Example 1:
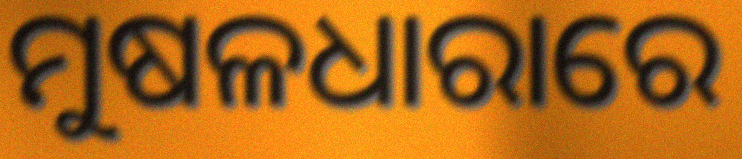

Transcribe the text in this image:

ମୁଷଳଧାରାରେ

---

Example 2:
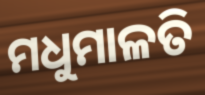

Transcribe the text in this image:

ମଧୁମାଳତି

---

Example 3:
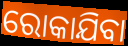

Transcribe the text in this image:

ରୋକାଯିବା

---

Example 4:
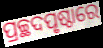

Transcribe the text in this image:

ପ୍ରଚ୍ଛଦପୃଷ୍ଠାରେ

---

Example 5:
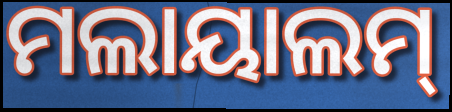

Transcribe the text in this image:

ମଲାୟାଲମ୍